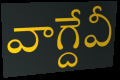
వాగ్దేవీ